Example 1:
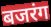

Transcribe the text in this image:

बजरंग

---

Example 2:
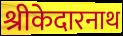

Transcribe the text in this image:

श्रीकेदारनाथ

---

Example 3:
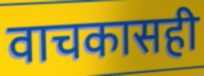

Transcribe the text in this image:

वाचकासही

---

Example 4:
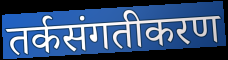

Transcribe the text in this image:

तर्कसंगतीकरण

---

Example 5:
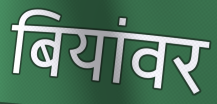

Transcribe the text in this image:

बियांवर